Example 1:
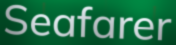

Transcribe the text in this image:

Seafarer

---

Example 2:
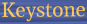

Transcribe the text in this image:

Keystone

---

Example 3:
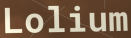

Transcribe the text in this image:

Lolium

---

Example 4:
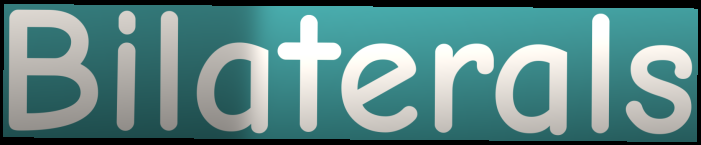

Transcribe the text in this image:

Bilaterals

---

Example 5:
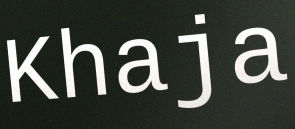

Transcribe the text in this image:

Khaja